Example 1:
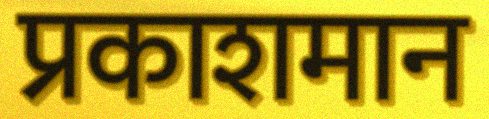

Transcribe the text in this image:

प्रकाशमान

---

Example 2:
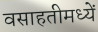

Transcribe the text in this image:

वसाहतीमध्यें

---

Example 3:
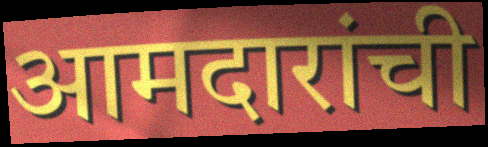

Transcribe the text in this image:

आमदारांची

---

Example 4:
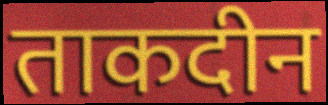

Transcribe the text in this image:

ताकदीन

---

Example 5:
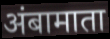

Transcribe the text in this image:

अंबामाता